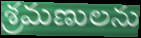
శ్రమణులను